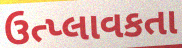
ઉત્પ્લાવકતા